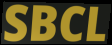
SBCL